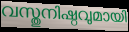
വസ്തുനിഷ്ഠവുമായി